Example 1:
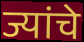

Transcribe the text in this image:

ज्यांचे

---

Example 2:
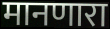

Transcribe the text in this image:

मानणारा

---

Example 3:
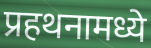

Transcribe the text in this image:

प्रहथनामध्ये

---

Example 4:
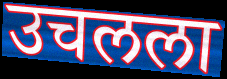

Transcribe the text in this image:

उचलला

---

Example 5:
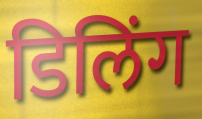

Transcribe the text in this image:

डिलिंग